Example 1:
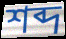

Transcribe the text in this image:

শব্দ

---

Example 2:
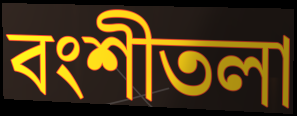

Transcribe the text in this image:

বংশীতলা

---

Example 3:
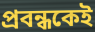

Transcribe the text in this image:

প্রবন্ধকেই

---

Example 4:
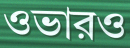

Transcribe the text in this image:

ওভারও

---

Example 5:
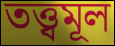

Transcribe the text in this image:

তত্ত্বমূল